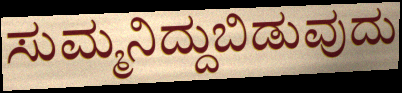
ಸುಮ್ಮನಿದ್ದುಬಿಡುವುದು